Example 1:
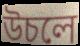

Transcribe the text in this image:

উচলে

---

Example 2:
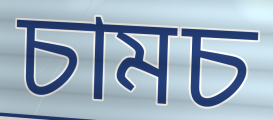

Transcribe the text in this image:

চামচ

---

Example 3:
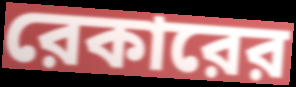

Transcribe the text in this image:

রেকারের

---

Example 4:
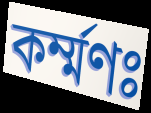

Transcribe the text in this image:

কর্ম্মণঃ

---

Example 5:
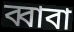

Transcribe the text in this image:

ব্বাবা